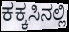
ಕಕ್ಕಸಿನಲ್ಲಿ